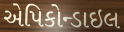
એપિકોન્ડાઇલ